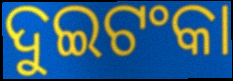
ଦୁଇଟଂକା